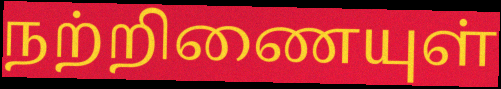
நற்றிணையுள்